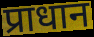
प्राधान